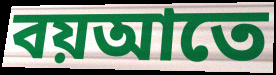
বয়আতে